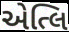
એત્લિ